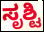
ಸೃಶ್ಟಿ